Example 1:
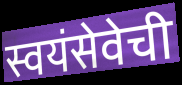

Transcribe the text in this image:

स्वयंसेवेची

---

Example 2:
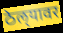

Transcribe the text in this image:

ठेल्यावर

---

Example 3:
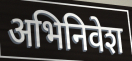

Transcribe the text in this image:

अभिनिवेश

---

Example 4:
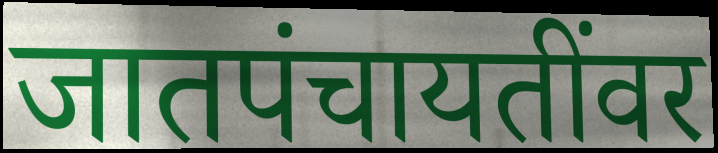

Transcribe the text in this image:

जातपंचायतींवर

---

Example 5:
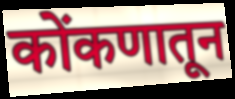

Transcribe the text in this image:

कोंकणातून